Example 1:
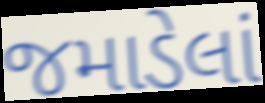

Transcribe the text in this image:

જમાડેલાં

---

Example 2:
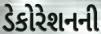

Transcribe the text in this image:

ડેકોરેશનની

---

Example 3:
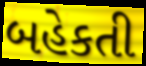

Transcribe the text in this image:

બહેકતી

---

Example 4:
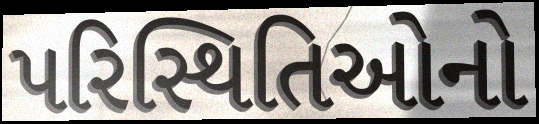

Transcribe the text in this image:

પરિસ્થિતિઓનો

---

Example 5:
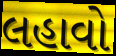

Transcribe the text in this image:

લહાવો